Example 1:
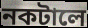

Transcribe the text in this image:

নকটালে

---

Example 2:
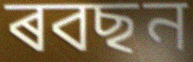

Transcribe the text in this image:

ৰবছন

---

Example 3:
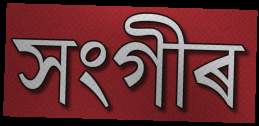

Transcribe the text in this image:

সংগীৰ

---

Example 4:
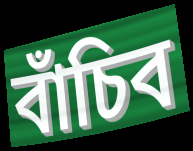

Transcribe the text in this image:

বাঁচিব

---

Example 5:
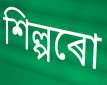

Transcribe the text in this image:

শিল্পৰো